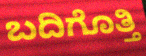
ಬದಿಗೊತ್ತಿ